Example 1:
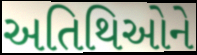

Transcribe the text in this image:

અતિથિઓને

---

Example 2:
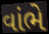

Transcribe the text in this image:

વાંભે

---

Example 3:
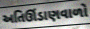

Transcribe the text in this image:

અતિઊંડાણવાળો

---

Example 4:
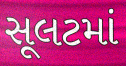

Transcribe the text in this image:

સૂલટમાં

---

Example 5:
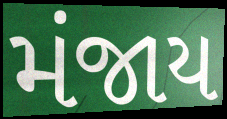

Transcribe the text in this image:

મંજાય